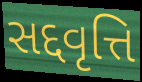
સદ્દવૃત્તિ